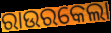
ରାଉରକେଲା